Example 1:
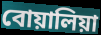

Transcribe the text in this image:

বোয়ালিয়া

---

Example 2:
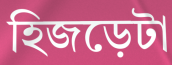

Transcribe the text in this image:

হিজড়েটা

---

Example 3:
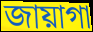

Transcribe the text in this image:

জায়াগা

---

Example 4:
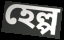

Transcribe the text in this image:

হেল্প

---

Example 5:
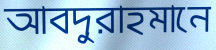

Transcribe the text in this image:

আবদুরাহমানে